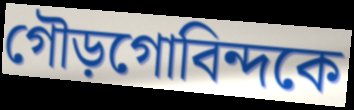
গৌড়গোবিন্দকে